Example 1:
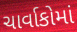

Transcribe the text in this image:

ચાર્વાકોમાં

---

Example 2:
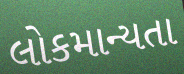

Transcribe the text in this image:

લોકમાન્યતા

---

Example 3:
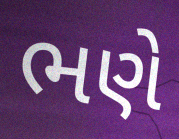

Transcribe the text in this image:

ભણે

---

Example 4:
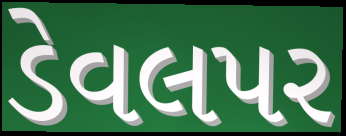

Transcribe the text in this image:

ડેવલપર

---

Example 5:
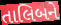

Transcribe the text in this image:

તાલિબને